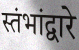
स्तंभांद्वारे